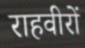
राहवीरों